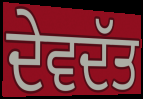
ਦੇਵਦੱਤ